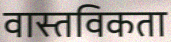
वास्तविकता